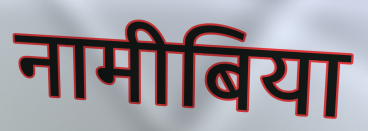
नामीबिया